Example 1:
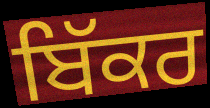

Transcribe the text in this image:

ਬਿੱਕਰ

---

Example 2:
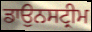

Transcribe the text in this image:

ਡਾਉਨਸਟ੍ਰੀਮ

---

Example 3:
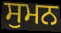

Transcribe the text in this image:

ਸੁਮਨ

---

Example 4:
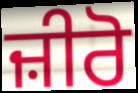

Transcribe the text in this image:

ਜ਼ੀਰੋ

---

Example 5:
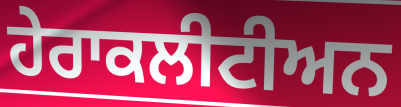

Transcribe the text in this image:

ਹੇਰਾਕਲੀਟੀਅਨ